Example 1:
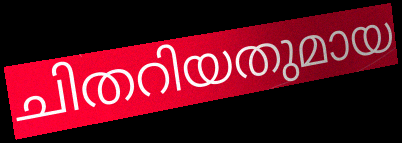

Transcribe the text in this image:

ചിതറിയതുമായ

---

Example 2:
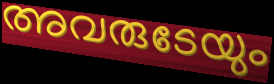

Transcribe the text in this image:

അവരുടേയും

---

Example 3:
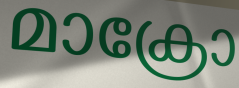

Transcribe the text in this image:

മാക്രോ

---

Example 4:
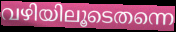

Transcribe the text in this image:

വഴിയിലൂടെതന്നെ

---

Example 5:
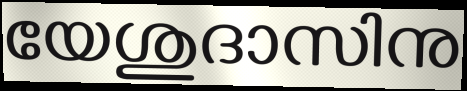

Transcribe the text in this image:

യേശുദാസിനു